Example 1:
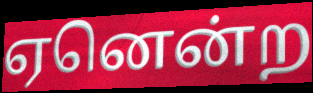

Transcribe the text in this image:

ஏனென்ற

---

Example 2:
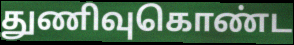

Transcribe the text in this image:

துணிவுகொண்ட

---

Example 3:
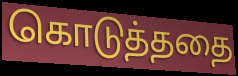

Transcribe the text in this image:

கொடுத்ததை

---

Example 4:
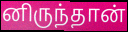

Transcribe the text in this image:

னிருந்தான்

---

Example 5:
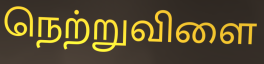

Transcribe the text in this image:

நெற்றுவிளை